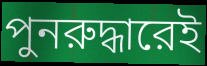
পুনরুদ্ধারেই